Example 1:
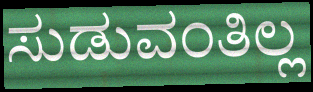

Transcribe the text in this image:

ಸುಡುವಂತಿಲ್ಲ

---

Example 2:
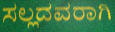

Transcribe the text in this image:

ಸಲ್ಲದವರಾಗಿ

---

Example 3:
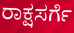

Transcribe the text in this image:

ರಾಕ್ಷಸರ್ಗೆ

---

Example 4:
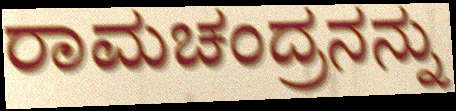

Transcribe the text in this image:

ರಾಮಚಂದ್ರನನ್ನು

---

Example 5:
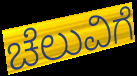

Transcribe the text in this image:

ಚೆಲುವಿಗೆ